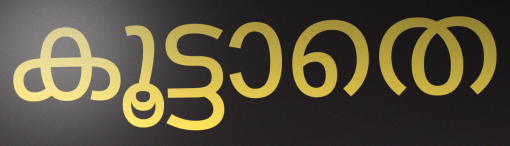
കൂട്ടാതെ